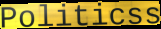
Politicss